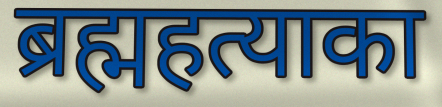
ब्रह्महत्याका